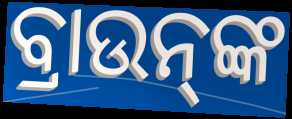
ବ୍ରାଉନ୍‌ଙ୍କ